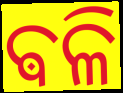
ଵଳି